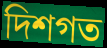
দিশগত